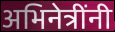
अभिनेत्रींनी